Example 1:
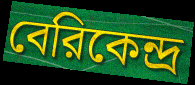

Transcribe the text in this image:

বেরিকেন্দ্র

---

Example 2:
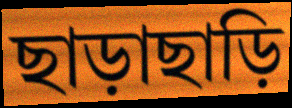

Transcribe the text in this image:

ছাড়াছাড়ি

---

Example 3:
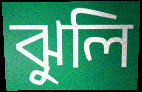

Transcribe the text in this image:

ঝুলি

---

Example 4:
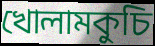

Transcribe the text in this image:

খোলামকুচি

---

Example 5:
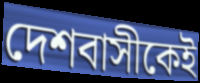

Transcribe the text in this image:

দেশবাসীকেই